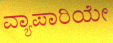
ವ್ಯಾಪಾರಿಯೇ